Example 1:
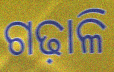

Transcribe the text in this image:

ଗଢ଼ାଳି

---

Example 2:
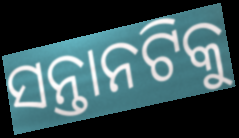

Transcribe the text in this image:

ସନ୍ତାନଟିକୁ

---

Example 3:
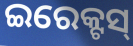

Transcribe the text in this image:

ଇରେକ୍ଟସ୍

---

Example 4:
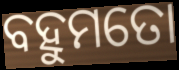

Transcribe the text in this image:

ବହୁମତୋ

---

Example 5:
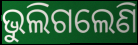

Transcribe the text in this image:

ଭୁଲିଗଲେଣି